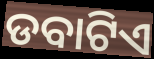
ଡବାଟିଏ